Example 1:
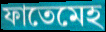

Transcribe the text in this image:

ফাতেমেহ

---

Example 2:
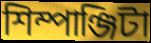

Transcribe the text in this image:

শিম্পাঞ্জিটা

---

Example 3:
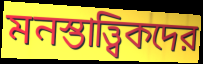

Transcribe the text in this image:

মনস্তাত্ত্বিকদের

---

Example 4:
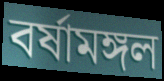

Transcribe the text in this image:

বর্ষামঙ্গল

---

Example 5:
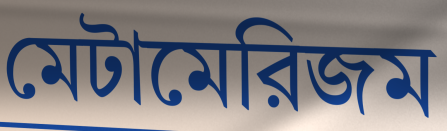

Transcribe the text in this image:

মেটামেরিজম